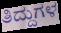
ತಿದ್ದುಗಳ